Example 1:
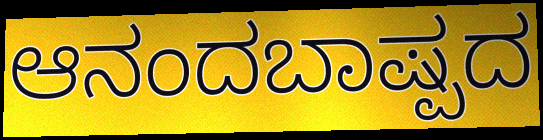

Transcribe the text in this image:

ಆನಂದಬಾಷ್ಪದ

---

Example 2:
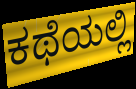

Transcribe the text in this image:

ಕಥೆಯಲ್ಲಿ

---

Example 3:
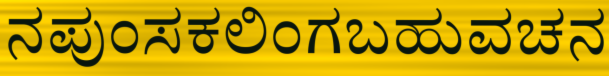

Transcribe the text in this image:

ನಪುಂಸಕಲಿಂಗಬಹುವಚನ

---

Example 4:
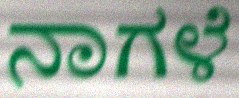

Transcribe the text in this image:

ನಾಗಳೆ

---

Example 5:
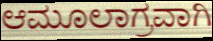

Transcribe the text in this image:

ಆಮೂಲಾಗ್ರವಾಗಿ